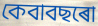
কেবাবছৰো